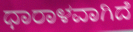
ಧಾರಾಳವಾಗಿದೆ